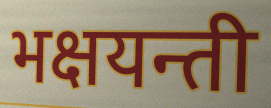
भक्षयन्ती